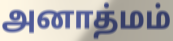
அனாத்மம்